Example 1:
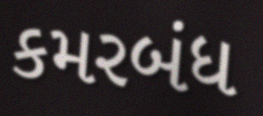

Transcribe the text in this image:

કમરબંધ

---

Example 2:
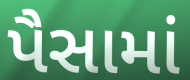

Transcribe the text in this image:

પૈસામાં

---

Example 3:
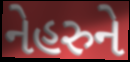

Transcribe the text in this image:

નેહરુને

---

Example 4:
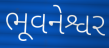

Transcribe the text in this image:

ભૂવનેશ્વર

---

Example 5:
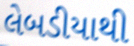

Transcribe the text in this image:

લેબડીયાથી